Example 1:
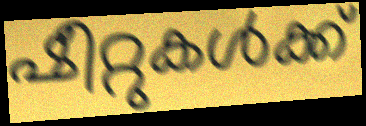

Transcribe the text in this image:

ഷീറ്റുകൾക്ക്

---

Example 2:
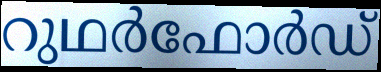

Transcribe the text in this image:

റുഥർഫോർഡ്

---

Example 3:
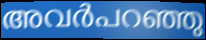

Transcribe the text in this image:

അവർപറഞ്ഞു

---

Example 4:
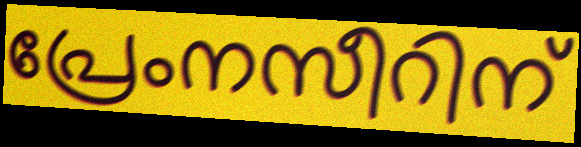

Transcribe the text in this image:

പ്രേംനസീറിന്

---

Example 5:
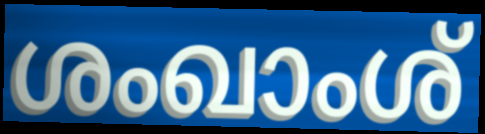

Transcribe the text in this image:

ശംഖാംശ്